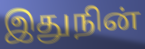
இதுநின்